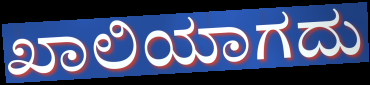
ಖಾಲಿಯಾಗದು